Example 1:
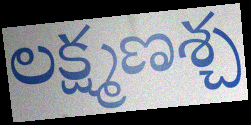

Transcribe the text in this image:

లక్ష్మణశ్చ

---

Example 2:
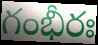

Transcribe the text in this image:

గంభీరః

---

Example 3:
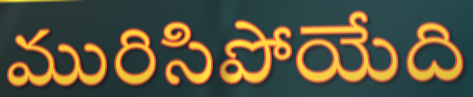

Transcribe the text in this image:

మురిసిపోయేది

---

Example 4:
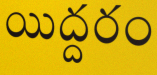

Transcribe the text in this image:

యిద్దరం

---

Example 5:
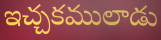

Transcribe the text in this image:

ఇచ్చకములాడు